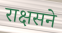
राक्षसने